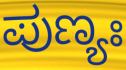
ಪುಣ್ಯಃ